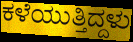
ಕಳೆಯುತ್ತಿದ್ದಳು